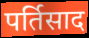
पर्तिसाद